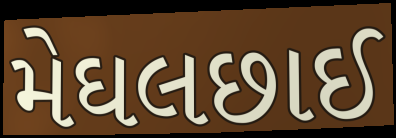
મેઘલછાઈ